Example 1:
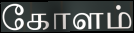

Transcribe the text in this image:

கோளம்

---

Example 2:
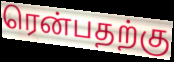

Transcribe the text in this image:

ரென்பதற்கு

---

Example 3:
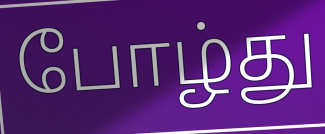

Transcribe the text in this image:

போழ்து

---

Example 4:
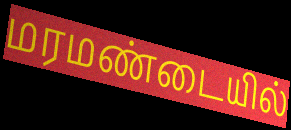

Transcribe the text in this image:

மரமண்டையில்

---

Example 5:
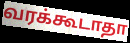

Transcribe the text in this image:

வரக்கூடாதா